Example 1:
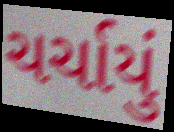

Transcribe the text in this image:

ચર્ચાયું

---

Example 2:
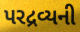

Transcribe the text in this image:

પરદ્રવ્યની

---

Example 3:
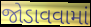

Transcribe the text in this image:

જોડાવવામાં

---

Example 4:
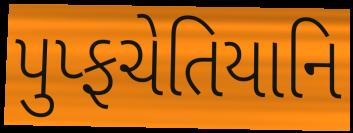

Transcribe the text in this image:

પુપ્ફચેતિયાનિ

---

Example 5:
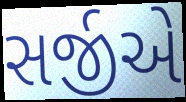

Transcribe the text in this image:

સર્જીએ